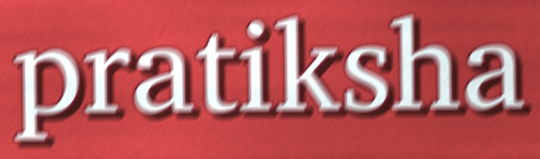
pratiksha